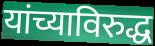
यांच्याविरुद्ध